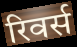
रिवर्स